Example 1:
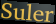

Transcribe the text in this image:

Suler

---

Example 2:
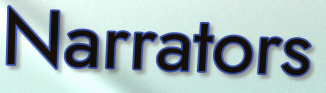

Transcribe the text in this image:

Narrators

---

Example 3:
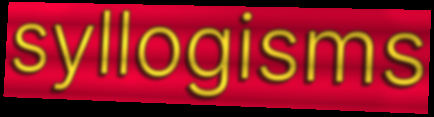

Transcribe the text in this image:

syllogisms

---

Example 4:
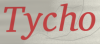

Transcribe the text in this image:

Tycho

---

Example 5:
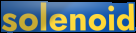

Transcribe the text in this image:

solenoid